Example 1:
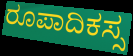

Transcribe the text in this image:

ರೂಪಾದಿಕಸ್ಸ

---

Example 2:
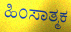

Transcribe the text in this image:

ಹಿಂಸಾತ್ಮಕ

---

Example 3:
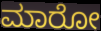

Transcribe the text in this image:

ಮಾರೋ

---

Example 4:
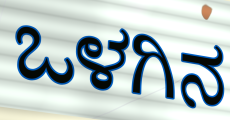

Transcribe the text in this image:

ಒಳಗಿನ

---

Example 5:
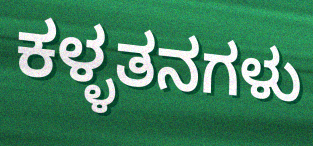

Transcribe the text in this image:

ಕಳ್ಳತನಗಳು